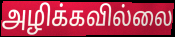
அழிக்கவில்லை